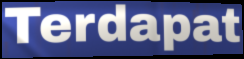
Terdapat